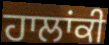
ਹਾਲਾਂਕੀ